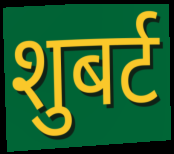
शुबर्ट